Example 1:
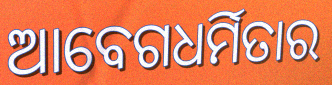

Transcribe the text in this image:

ଆବେଗଧର୍ମିତାର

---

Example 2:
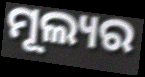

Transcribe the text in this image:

ମୂଲ୍ୟର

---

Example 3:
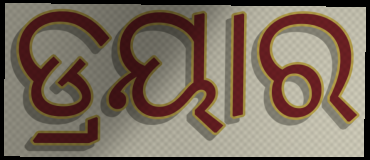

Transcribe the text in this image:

ଡ୍ରୟାର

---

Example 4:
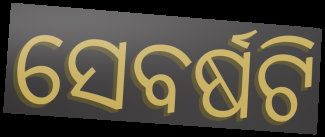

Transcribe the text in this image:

ସେବର୍ଷଟି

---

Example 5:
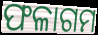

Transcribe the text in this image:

ଫଳାଗମ